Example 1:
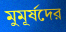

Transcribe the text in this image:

মুমূর্ষদের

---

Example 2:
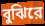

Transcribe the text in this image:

বুঝিরে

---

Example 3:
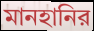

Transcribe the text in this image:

মানহানির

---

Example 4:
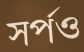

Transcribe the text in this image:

সর্পও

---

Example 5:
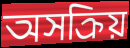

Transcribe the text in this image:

অসক্রিয়